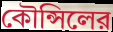
কৌন্সিলের